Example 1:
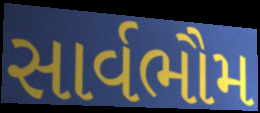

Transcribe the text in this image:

સાર્વભૌમ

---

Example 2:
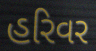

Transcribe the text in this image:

હરિવર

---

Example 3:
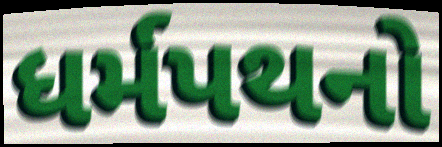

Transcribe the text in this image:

ધર્મપથનો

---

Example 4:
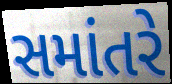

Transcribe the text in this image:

સમાંતરે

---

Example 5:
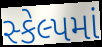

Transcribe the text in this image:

સ્કેલ્પમાં